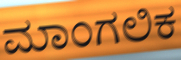
ಮಾಂಗಲಿಕ